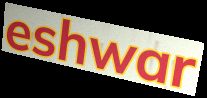
eshwar